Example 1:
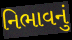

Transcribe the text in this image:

નિભાવનું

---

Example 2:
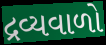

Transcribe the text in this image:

દ્રવ્યવાળો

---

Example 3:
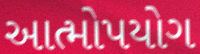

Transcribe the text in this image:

આત્મોપયોગ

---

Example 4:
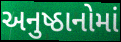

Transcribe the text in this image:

અનુષ્ઠાનોમાં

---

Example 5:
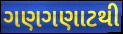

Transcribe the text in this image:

ગણગણાટથી